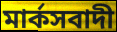
মার্কসবাদী